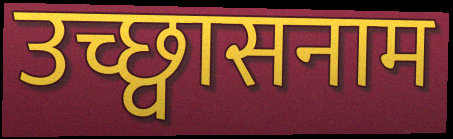
उच्छ्वासनाम